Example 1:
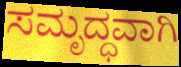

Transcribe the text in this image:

ಸಮೃದ್ಧವಾಗಿ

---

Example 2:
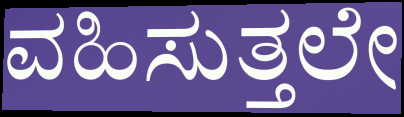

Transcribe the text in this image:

ವಹಿಸುತ್ತಲೇ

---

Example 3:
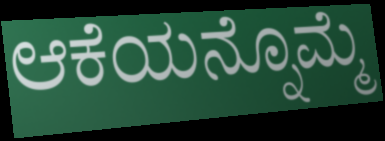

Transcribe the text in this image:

ಆಕೆಯನ್ನೊಮ್ಮೆ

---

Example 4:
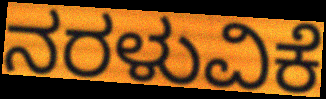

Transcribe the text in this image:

ನರಳುವಿಕೆ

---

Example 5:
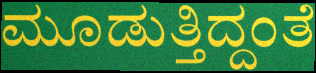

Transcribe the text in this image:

ಮೂಡುತ್ತಿದ್ದಂತೆ